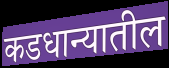
कडधान्यातील